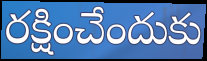
రక్షించేందుకు